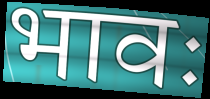
भावः